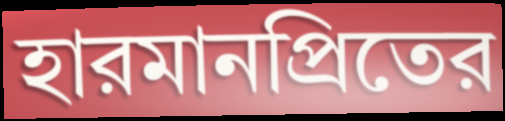
হারমানপ্রিতের